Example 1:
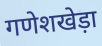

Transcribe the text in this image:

गणेशखेड़ा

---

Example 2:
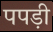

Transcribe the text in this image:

पपड़ी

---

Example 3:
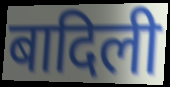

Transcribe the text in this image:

बादिली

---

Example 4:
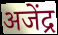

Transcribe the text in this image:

अजेंद्र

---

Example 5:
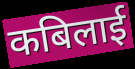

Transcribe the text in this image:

कबिलाई